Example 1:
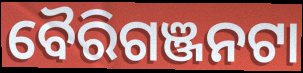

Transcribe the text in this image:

ବୈରିଗଞ୍ଜନଟା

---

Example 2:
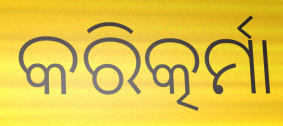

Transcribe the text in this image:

କରିତ୍କର୍ମା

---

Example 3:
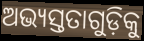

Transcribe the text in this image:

ଅଭ୍ୟସ୍ତତାଗୁଡ଼ିକୁ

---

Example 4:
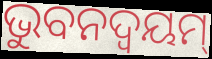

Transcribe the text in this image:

ଭୁବନଦ୍ଵୟମ୍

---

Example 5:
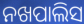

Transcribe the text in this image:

ନଖପାଲିସ